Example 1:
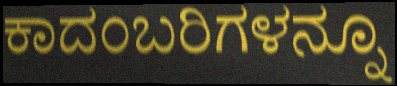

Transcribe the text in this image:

ಕಾದಂಬರಿಗಳನ್ನೂ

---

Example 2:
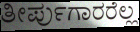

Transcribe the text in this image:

ತೀರ್ಪುಗಾರರೆಲ್ಲ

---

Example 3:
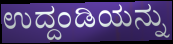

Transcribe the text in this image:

ಉದ್ದಂಡಿಯನ್ನು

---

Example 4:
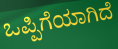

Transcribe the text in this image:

ಒಪ್ಪಿಗೆಯಾಗಿದೆ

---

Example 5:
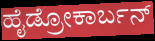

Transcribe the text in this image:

ಹೈಡ್ರೋಕಾರ್ಬನ್